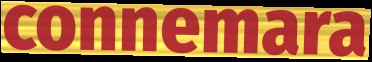
connemara